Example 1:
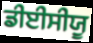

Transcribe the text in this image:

ਡੀਈਸੀਯੂ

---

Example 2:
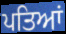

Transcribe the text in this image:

ਪਤਿਆਂ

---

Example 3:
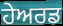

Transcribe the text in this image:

ਹੇਅਰਡ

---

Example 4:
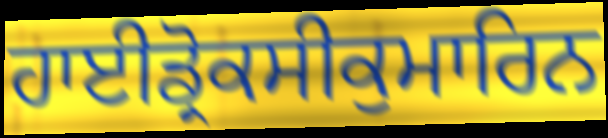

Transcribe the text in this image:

ਹਾਈਡ੍ਰੋਕਸੀਕੁਮਾਰਿਨ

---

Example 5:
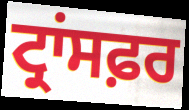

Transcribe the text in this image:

ਟ੍ਰਾਂਸਫ਼ਰ